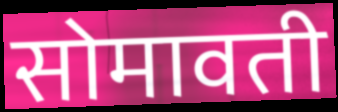
सोमावती